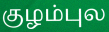
குழம்புல